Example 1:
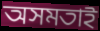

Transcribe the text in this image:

অসমতাই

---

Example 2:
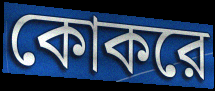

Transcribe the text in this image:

কোকরে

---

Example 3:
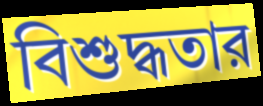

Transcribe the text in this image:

বিশুদ্ধতার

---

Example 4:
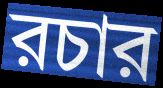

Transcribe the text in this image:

রচার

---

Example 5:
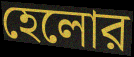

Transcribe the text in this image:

হেলোর